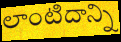
లాంటిదాన్ని